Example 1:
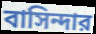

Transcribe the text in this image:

বাসিন্দার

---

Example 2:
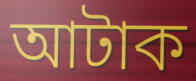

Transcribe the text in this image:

আটাক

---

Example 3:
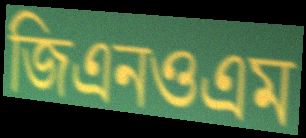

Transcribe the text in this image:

জিএনওএম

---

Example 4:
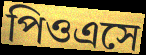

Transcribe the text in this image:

পিওএসে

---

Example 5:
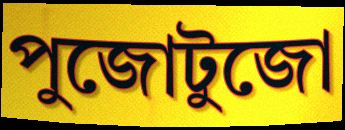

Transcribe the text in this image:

পুজোটুজো